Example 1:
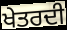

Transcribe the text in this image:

ਖੇਤਰਦੀ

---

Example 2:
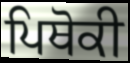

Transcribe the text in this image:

ਪਿਥੋਕੀ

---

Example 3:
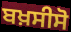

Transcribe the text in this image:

ਬਖ਼ਸੀਸੋ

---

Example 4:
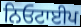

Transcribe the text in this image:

ਨਿਓਟਾਈਪ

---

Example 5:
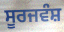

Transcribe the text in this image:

ਸੂਰਜਵੰਸ਼